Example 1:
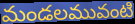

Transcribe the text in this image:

మండలమువంటి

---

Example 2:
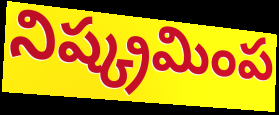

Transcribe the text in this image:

నిష్క్రమింప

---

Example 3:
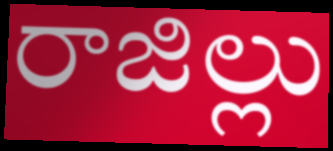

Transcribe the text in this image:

రాజిల్లు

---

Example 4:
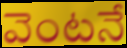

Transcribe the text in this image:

వెంటనే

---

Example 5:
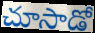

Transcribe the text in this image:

చూసాడో